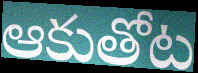
ఆకుతోట